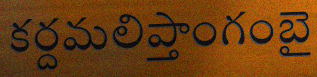
కర్దమలిప్తాంగంబై